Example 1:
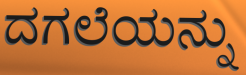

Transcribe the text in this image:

ದಗಲೆಯನ್ನು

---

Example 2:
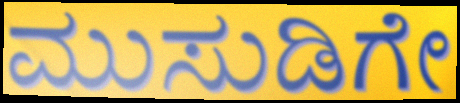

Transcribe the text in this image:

ಮುಸುಡಿಗೇ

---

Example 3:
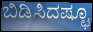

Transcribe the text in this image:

ಬಿಡಿಸಿದಷ್ಟೂ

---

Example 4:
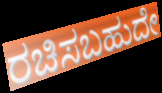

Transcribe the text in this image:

ರಚಿಸಬಹುದೇ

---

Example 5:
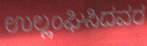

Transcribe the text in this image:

ಉಲ್ಲಂಘಿಸಿದವರ